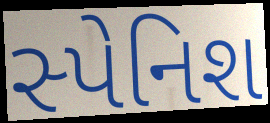
સ્પેનિશ